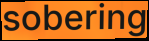
sobering